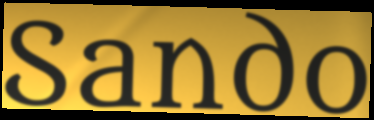
Sando